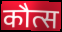
कौत्स